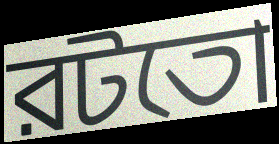
রটতো